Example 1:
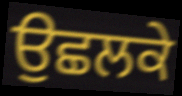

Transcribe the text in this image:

ਉਛਲਕੇ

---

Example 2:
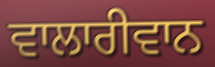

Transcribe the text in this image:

ਵਾਲਾਰੀਵਾਨ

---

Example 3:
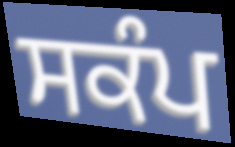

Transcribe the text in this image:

ਸਕੰਪ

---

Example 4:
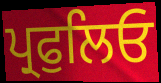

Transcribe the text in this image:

ਪ੍ਰਫੁਲਿਓ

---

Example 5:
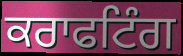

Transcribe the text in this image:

ਕਰਾਫਟਿੰਗ